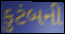
કુટંબની